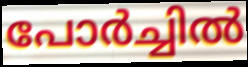
പോർച്ചിൽ